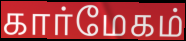
கார்மேகம்